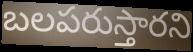
బలపరుస్తారని